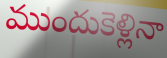
ముందుకెళ్లినా